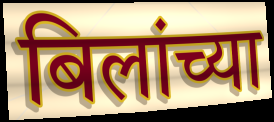
बिलांच्या